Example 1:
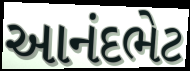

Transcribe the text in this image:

આનંદભેટ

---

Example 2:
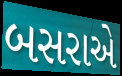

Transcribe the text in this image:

બસરાએ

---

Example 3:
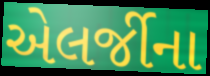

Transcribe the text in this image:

એલર્જીના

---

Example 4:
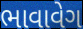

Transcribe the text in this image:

ભાવાવેગ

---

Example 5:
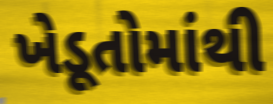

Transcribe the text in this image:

ખેડૂતોમાંથી